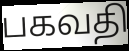
பகவதி